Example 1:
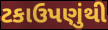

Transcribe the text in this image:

ટકાઉપણુંથી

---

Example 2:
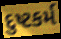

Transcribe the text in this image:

દુષ્ટકર્મ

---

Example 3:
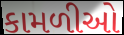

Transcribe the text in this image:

કામળીઓ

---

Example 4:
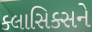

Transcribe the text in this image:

ક્લાસિક્સને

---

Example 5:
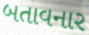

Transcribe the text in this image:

બતાવનાર